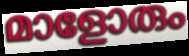
മാളോരും